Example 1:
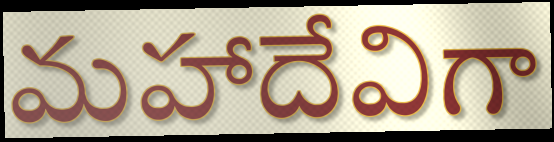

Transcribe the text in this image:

మహాదేవిగా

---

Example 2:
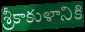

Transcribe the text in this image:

శ్రీకాకుళానికి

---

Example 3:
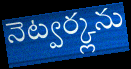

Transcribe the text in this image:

నెట్వర్క్లను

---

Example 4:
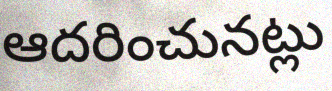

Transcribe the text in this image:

ఆదరించునట్లు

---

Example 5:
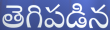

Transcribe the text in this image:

తెగిపడిన